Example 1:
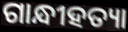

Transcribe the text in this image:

ଗାନ୍ଧୀହତ୍ୟା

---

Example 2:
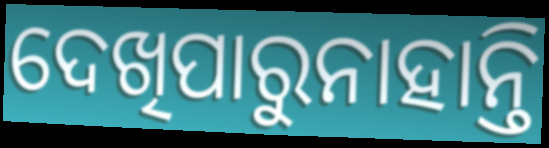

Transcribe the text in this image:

ଦେଖିପାରୁନାହାନ୍ତି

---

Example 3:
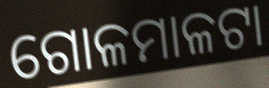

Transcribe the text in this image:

ଗୋଳମାଳଟା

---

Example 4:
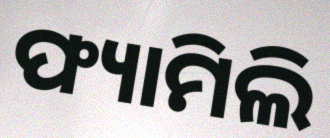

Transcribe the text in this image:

ଫ୍ୟାମିଲି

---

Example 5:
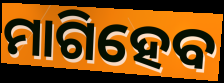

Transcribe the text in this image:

ମାଗିହେବ